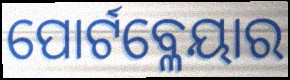
ପୋର୍ଟବ୍ଳେୟାର